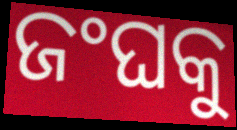
ଜଂଘକୁ